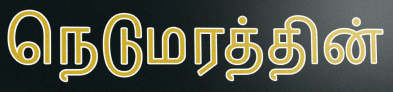
நெடுமரத்தின்